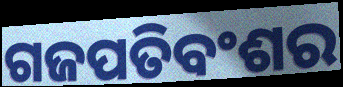
ଗଜପତିବଂଶର